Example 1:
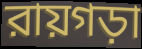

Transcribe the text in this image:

রায়গড়া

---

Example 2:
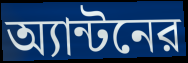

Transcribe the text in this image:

অ্যান্টনের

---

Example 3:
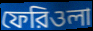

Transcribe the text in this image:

ফেরিওলা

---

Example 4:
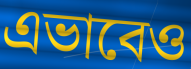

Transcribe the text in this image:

এভাবেও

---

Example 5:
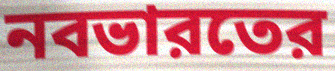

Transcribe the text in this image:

নবভারতের